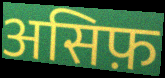
असिफ़